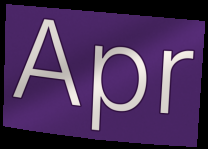
Apr